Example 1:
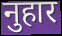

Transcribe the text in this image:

नुहार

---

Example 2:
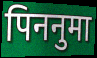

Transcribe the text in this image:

पिननुमा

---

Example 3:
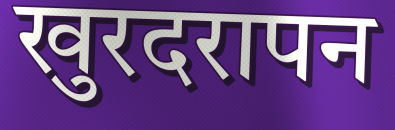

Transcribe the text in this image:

खुरदरापन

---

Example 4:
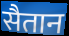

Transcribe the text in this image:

सैतान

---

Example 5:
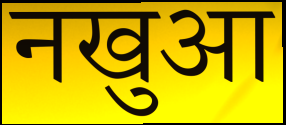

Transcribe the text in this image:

नखुआ